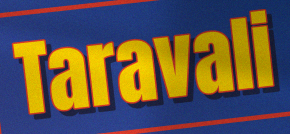
Taravali